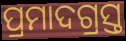
ପ୍ରମାଦଗ୍ରସ୍ତ